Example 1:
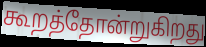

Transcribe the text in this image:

கூறத்தோன்றுகிறது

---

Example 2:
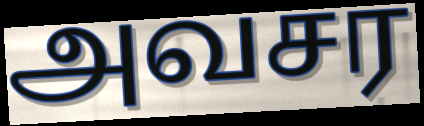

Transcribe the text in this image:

அவசர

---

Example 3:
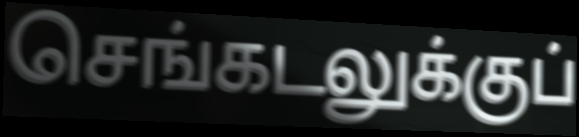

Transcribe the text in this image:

செங்கடலுக்குப்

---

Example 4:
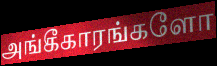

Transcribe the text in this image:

அங்கீகாரங்களோ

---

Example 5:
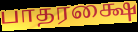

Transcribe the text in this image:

பாதரக்ஷை